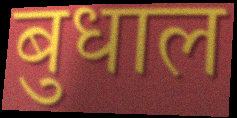
बुधाल